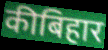
कीबिहार